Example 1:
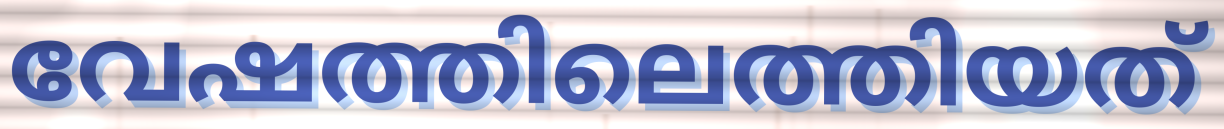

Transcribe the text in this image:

വേഷത്തിലെത്തിയത്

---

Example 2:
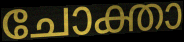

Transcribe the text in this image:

ചോക്താ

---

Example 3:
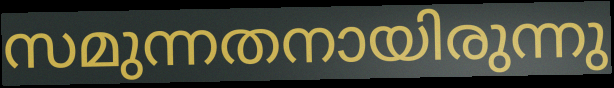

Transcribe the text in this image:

സമുന്നതനായിരുന്നു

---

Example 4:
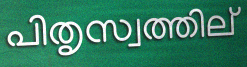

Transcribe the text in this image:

പിതൃസ്വത്തില്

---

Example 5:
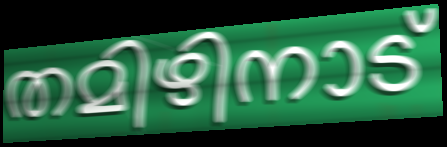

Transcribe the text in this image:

തമിഴിനാട്